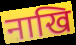
नाखि